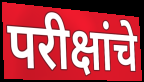
परीक्षांचे